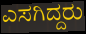
ಎಸಗಿದ್ದರು